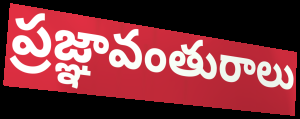
ప్రజ్ఞావంతురాలు